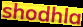
shodhla